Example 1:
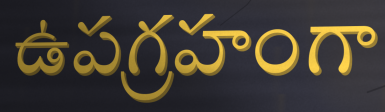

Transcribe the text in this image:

ఉపగ్రహంగా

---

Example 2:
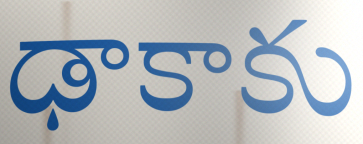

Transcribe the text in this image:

ఢాకాకు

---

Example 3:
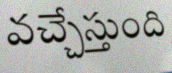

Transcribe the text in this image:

వచ్చేస్తుంది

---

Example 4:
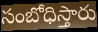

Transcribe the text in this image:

సంబోధిస్తారు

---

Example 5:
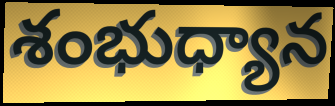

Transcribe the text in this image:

శంభుధ్యాన